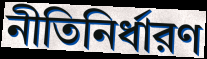
নীতিনির্ধারণ